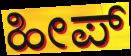
ಹೀಪ್